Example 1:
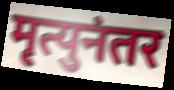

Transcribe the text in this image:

मृत्युनंतर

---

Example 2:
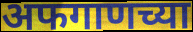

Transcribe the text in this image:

अफगाणच्या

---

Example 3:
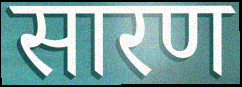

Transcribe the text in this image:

सारण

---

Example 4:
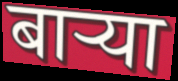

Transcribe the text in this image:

बाऱ्या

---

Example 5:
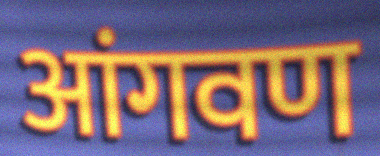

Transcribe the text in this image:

आंगवण